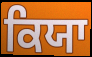
ਕਿਯਾ